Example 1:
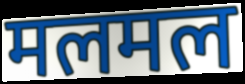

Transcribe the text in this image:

मलमल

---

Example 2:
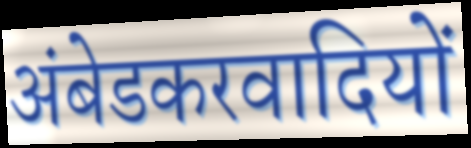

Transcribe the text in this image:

अंबेडकरवादियों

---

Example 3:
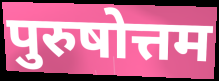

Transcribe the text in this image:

पुरुषोत्तम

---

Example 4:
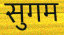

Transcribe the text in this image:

सुगम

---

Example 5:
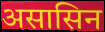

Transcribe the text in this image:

असासिन